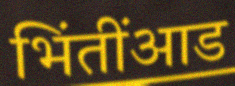
भिंतींआड